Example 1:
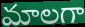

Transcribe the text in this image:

మాలగా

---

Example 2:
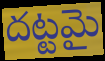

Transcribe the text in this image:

దట్టమై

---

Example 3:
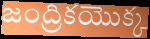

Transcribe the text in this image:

జంద్రికయొక్క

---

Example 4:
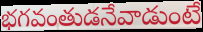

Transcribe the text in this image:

భగవంతుడనేవాడుంటే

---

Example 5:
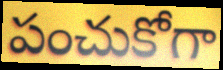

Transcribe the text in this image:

పంచుకోగా